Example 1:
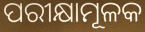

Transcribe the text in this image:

ପରୀକ୍ଷାମୂଳକ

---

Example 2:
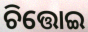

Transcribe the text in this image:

ଚିତ୍ତୋଇ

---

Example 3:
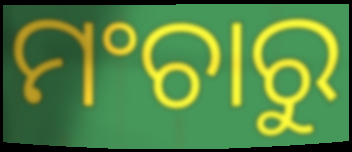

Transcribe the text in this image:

ମଂଚାରୁ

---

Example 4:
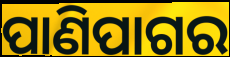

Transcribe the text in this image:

ପାଣିପାଗର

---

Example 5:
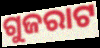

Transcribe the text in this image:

ଗୁଜରାଟ